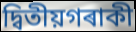
দ্বিতীয়গৰাকী